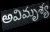
అవిమృశ్య